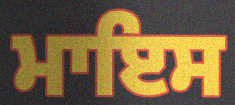
ਮਾਇਸ